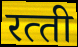
रत्‍ती